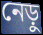
নেড়ু